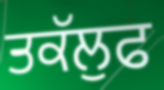
ਤਕੱਲੁਫ